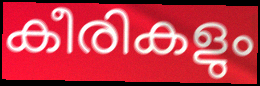
കീരികളും